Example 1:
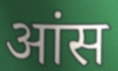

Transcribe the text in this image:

आंस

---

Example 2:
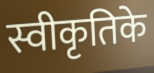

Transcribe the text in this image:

स्वीकृतिके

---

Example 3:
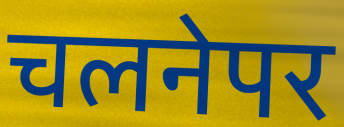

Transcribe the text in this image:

चलनेपर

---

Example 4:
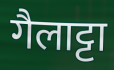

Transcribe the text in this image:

गैलाट्टा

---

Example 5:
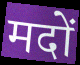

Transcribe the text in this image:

मदों